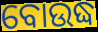
ବୋଉଦ୍ଧ